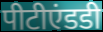
पीटीएंडडी